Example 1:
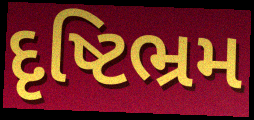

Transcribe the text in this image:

દૃષ્ટિભ્રમ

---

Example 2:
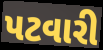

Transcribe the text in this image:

પટવારી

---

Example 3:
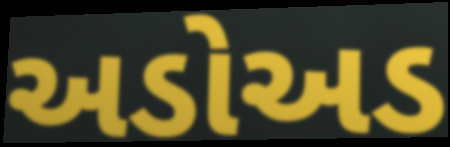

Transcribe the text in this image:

અડોઅડ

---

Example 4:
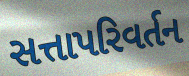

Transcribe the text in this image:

સત્તાપરિવર્તન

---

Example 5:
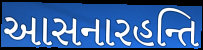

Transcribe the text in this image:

આસનારહન્તિ